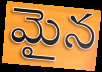
మైన